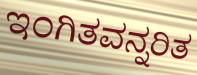
ಇಂಗಿತವನ್ನರಿತ